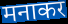
मनाकर